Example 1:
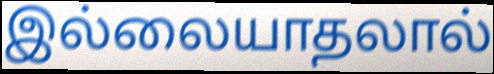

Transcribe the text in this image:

இல்லையாதலால்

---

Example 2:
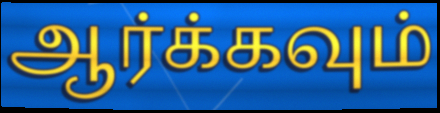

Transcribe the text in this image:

ஆர்க்கவும்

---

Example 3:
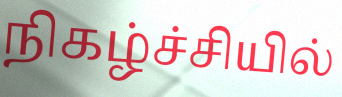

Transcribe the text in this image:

நிகழ்ச்சியில்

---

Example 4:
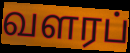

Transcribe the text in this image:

வளரப்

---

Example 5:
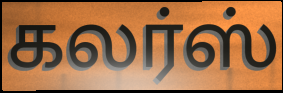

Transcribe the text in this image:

கலர்ஸ்